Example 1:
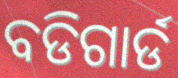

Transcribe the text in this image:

ବଡିଗାର୍ଡ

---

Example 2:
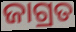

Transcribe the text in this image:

ଜାଗ୍ରତ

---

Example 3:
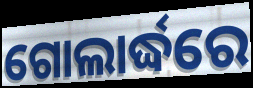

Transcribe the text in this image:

ଗୋଲାର୍ଦ୍ଧରେ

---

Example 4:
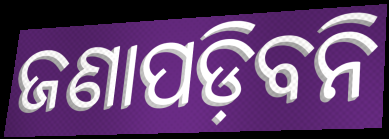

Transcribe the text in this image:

ଜଣାପଡ଼ିବନି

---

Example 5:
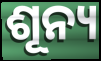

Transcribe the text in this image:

ଶୂନ୍ୟ